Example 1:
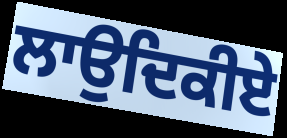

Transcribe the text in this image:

ਲਾਉਦਿਕੀਏ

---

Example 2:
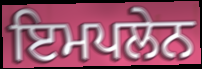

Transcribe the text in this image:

ਇਮਪਲੇਨ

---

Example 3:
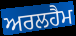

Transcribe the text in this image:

ਅਰਲਹੈਮ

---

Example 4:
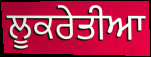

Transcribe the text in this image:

ਲੂਕਰੇਤੀਆ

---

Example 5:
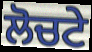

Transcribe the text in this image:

ਲੋਚਟੇ